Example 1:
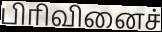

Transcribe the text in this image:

பிரிவினைச்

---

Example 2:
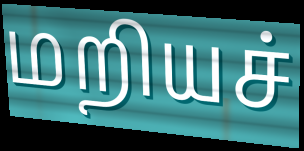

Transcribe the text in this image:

மறியச்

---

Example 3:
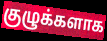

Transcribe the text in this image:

குழுக்களாக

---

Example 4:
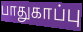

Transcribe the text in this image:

பாதுகாப்பு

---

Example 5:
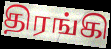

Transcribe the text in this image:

திரங்கி